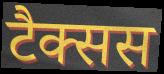
टैक्सस